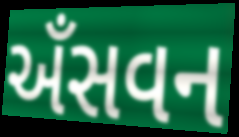
અઁસવન